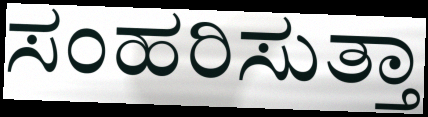
ಸಂಹರಿಸುತ್ತಾ